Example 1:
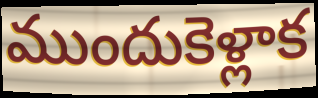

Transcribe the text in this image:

ముందుకెళ్లాక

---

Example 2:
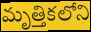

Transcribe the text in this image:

మృత్తికలోని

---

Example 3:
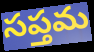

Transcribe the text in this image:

సప్తమ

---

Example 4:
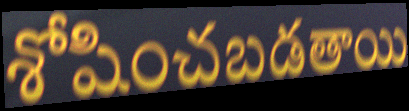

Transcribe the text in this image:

శోషించబడతాయి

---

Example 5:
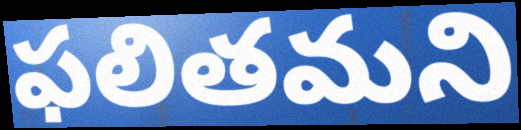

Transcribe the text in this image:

ఫలితమని